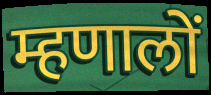
म्हणालों